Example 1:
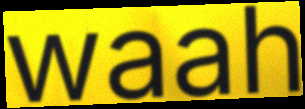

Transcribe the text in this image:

waah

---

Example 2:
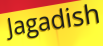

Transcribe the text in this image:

Jagadish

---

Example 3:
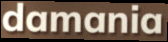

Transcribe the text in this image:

damania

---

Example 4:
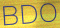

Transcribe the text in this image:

BDO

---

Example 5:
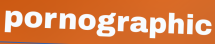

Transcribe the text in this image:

pornographic